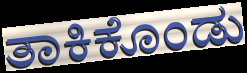
ತಾಕಿಕೊಂಡು